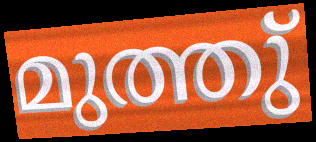
മുത്തു്